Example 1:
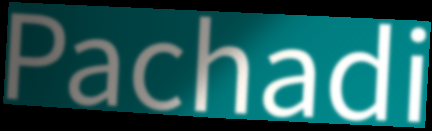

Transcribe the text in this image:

Pachadi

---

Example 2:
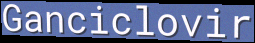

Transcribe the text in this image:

Ganciclovir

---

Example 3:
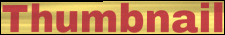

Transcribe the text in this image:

Thumbnail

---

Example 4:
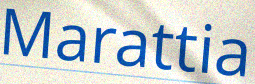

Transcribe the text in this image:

Marattia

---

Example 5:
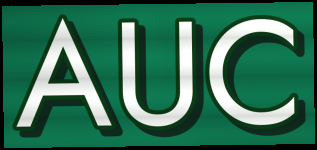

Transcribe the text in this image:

AUC